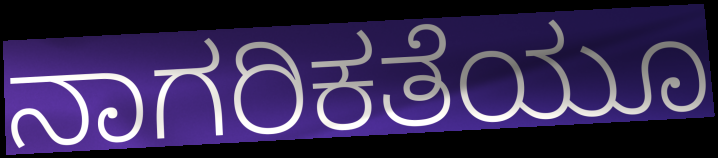
ನಾಗರಿಕತೆಯೂ